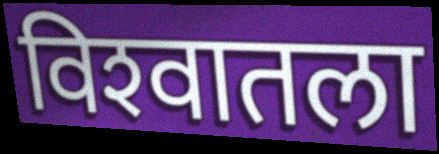
विश्‍वातला